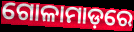
ଗୋଳାମାଡ଼ରେ